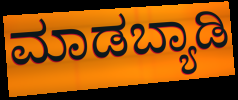
ಮಾಡಬ್ಯಾಡಿ